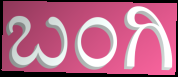
ಬಂಗಿ